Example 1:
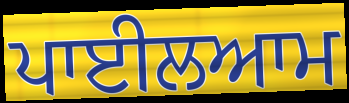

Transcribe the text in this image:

ਪਾਈਲਆਮ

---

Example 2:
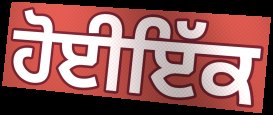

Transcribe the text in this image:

ਹੋਈਇੱਕ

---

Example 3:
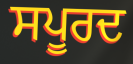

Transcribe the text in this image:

ਸਪੂਰਦ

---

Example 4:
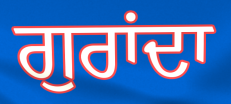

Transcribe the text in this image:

ਗੁਰਾਂਦਾ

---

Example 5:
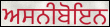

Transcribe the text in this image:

ਅਸਨੀਬੋਇਨ